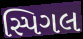
સ્પિગલ